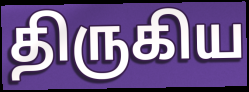
திருகிய